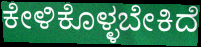
ಕೇಳಿಕೊಳ್ಳಬೇಕಿದೆ